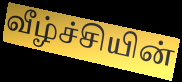
வீழ்ச்சியின்